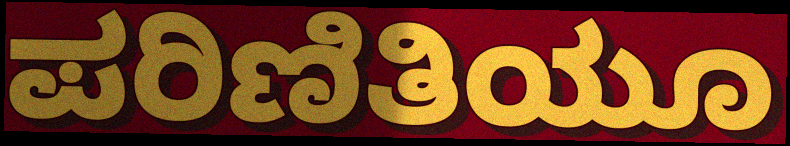
ಪರಿಣಿತಿಯೂ